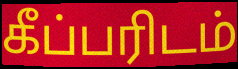
கீப்பரிடம்